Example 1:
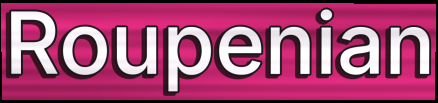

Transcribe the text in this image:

Roupenian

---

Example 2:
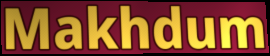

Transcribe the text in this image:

Makhdum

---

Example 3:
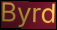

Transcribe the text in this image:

Byrd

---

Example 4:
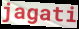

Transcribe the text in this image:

jagati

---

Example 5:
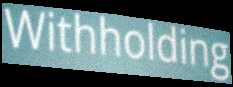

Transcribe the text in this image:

Withholding